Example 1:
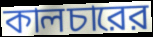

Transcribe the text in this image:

কালচারের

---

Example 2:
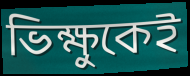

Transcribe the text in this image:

ভিক্ষুকেই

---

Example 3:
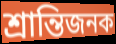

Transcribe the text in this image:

শ্রান্তিজনক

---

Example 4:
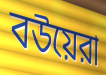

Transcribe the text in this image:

বউয়েরা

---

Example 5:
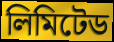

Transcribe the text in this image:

লিমিটেড